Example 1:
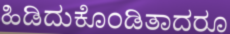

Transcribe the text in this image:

ಹಿಡಿದುಕೊಂಡಿತಾದರೂ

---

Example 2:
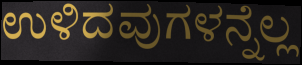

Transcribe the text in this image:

ಉಳಿದವುಗಳನ್ನೆಲ್ಲ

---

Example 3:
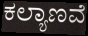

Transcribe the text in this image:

ಕಲ್ಯಾಣವೆ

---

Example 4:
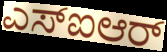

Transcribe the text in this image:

ಎಸ್ಐಆರ್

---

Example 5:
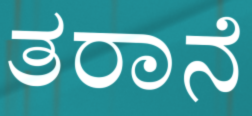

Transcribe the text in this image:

ತರಾನೆ